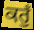
ਕਰੁਁ